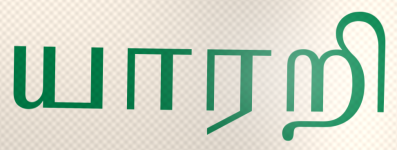
யாரறி